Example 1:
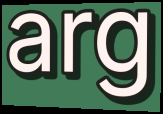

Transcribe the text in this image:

arg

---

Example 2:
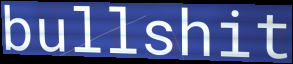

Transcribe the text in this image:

bullshit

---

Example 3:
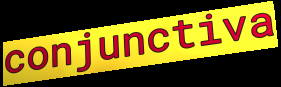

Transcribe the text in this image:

conjunctiva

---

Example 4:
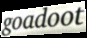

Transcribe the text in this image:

goadoot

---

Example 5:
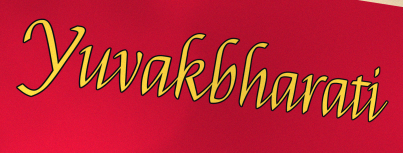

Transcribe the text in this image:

Yuvakbharati